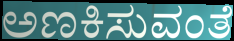
ಅಣಕಿಸುವಂತೆ